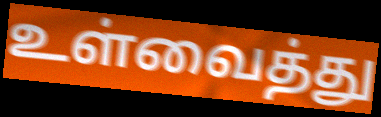
உள்வைத்து